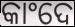
କାଂଦେ